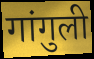
गांगुली